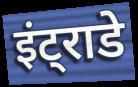
इंट्राडे